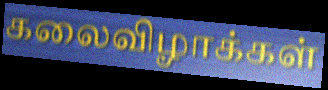
கலைவிழாக்கள்